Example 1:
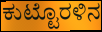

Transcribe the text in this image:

ಕುಟ್ಟೊರಳಿನ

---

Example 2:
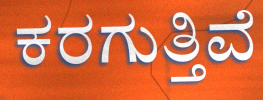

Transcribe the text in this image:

ಕರಗುತ್ತಿವೆ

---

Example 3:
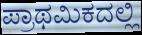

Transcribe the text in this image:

ಪ್ರಾಥಮಿಕದಲ್ಲಿ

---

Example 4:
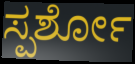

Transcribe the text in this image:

ಸ್ಪರ್ಶೋ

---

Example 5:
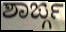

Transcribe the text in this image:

ಶಾರ್ಙ್ಗ